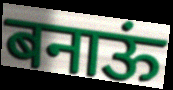
बनाऊं